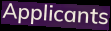
Applicants